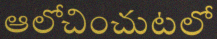
ఆలోచించుటలో